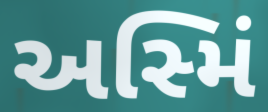
અસ્મિં